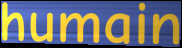
humain